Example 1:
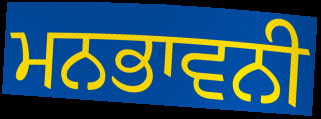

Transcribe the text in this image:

ਮਨਭਾਵਨੀ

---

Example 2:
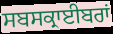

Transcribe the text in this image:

ਸਬਸਕ੍ਰਾਈਬਰਾਂ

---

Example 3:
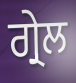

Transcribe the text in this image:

ਗ੍ਰੇਲ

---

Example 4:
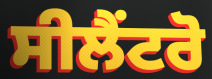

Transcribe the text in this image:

ਸੀਲੈਂਟਰੋ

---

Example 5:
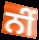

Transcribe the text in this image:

ਨੀਂ